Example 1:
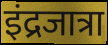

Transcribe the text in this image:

इंद्रजात्रा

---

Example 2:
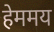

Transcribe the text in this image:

हेममय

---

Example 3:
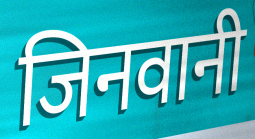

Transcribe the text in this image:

जिनवानी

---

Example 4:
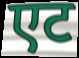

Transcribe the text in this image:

एट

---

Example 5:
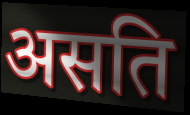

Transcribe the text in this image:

असति